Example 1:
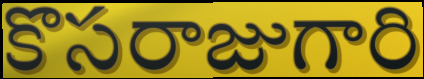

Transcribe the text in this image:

కొసరాజుగారి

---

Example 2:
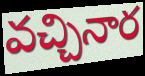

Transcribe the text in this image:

వచ్చినార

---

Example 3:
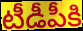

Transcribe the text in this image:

టీడీపీకి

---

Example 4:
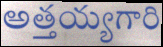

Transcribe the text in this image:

అత్తయ్యగారి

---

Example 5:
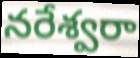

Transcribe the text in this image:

నరేశ్వరా